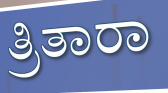
ತ್ರಿತಾರಾ